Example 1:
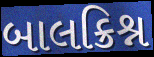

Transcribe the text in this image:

બાલક્રિશ્ન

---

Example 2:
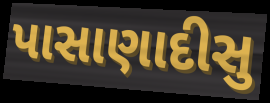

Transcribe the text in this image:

પાસાણાદીસુ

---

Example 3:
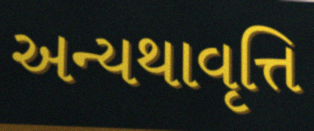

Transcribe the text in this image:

અન્યથાવૃત્તિ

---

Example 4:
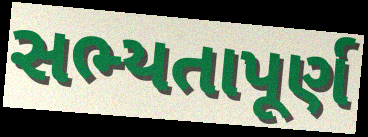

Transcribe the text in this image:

સભ્યતાપૂર્ણ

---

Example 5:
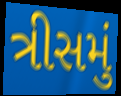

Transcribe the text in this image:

ત્રીસમું